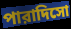
পারাদিসো